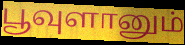
பூவுளானும்